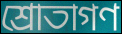
শ্রোতাগণ